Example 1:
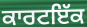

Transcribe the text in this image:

ਕਾਰਟਇੱਕ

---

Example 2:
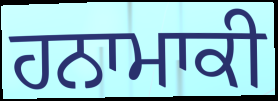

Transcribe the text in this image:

ਹਨਾਮਾਕੀ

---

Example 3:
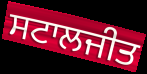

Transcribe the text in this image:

ਸਟਾਲਜੀਤ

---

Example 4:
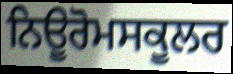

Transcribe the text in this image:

ਨਿਊਰੋਮਸਕੂਲਰ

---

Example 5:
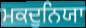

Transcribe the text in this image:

ਮਕਦੁਨਿਯਾ